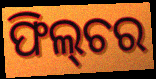
ଫିଲ୍‌ଚର